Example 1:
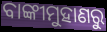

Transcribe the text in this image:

ବାଙ୍କୀମୁହାଣରୁ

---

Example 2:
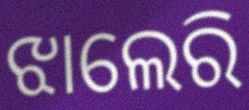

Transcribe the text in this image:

ଝାଲେରି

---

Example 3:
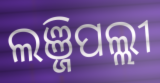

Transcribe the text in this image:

ଲଞ୍ଜିପଲ୍ଲୀ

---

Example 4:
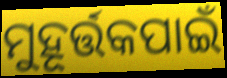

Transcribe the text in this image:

ମୁହୂର୍ତ୍ତକପାଇଁ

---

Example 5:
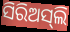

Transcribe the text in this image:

ସିରିଅସ୍‌ଲି